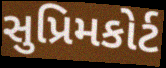
સુપ્રિમકોર્ટ